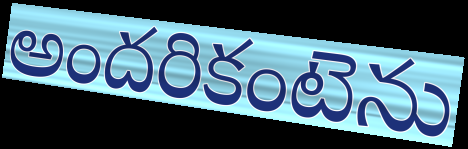
అందరికంటెను